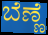
ಬೆಣ್ಣೆ